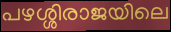
പഴശ്ശിരാജയിലെ